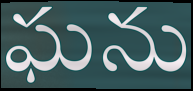
ఘను